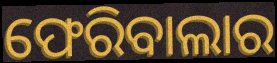
ଫେରିବାଲାର